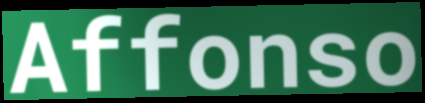
Affonso